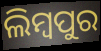
ଲିମ୍ବପୁର